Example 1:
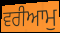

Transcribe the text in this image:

ਵਰੀਆਮੁ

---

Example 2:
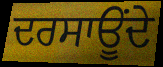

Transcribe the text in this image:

ਦਰਸਾਊਂਦੇ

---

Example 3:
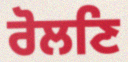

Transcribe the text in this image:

ਰੋਲਣਿ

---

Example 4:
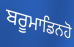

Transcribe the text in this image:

ਬਰੂਮਾਡਿਨਹੋ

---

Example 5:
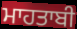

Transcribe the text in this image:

ਮਾਹਤਾਬੀ